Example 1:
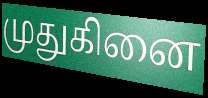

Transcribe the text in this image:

முதுகினை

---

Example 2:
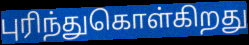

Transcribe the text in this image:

புரிந்துகொள்கிறது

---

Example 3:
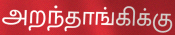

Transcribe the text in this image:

அறந்தாங்கிக்கு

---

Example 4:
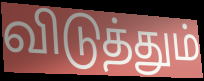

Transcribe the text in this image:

விடுத்தும்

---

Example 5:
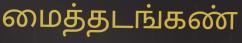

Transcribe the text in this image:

மைத்தடங்கண்